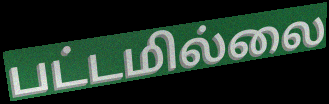
பட்டமில்லை